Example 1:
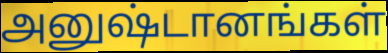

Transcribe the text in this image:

அனுஷ்டானங்கள்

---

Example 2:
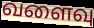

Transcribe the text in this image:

வளைவு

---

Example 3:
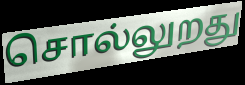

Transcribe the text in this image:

சொல்லுறது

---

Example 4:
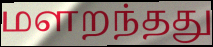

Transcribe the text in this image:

மளறந்தது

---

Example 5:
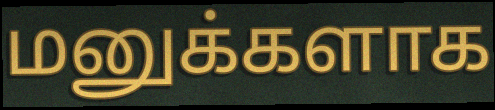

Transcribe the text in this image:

மனுக்களாக